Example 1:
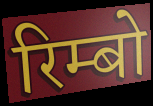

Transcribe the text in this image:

रिम्बो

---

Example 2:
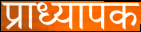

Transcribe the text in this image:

प्राध्यापक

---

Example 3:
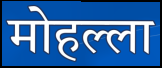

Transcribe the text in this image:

मोहल्‍ला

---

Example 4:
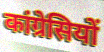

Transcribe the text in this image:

कांग्रेसियों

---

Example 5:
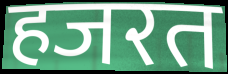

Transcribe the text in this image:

हजरत